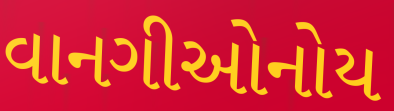
વાનગીઓનોય